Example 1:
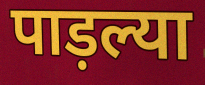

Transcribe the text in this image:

पाड़ल्या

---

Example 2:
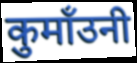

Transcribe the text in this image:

कुमाँउनी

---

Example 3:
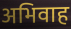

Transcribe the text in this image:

अभिवाह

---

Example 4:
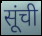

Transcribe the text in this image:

सूंची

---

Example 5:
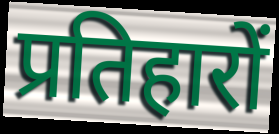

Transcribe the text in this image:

प्रतिहारों